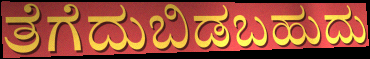
ತೆಗೆದುಬಿಡಬಹುದು